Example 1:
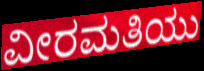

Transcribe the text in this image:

ವೀರಮತಿಯು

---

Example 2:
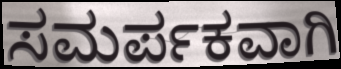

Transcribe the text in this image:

ಸಮರ್ಪಕವಾಗಿ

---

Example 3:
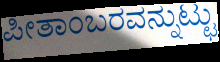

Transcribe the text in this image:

ಪೀತಾಂಬರವನ್ನುಟ್ಟು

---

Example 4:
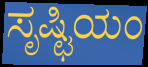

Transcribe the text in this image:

ಸೃಷ್ಟಿಯಂ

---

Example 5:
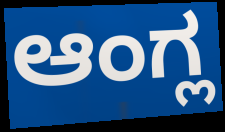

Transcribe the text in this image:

ಆಂಗ್ಲ